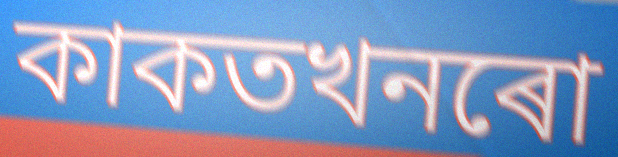
কাকতখনৰো